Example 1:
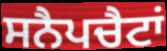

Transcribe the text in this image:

ਸਨੈਪਚੈਟਾਂ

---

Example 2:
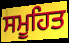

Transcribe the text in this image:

ਸਮੂਹਿਤ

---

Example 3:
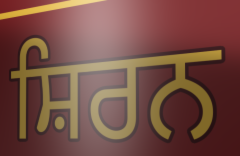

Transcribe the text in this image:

ਸ਼ਿਰਨ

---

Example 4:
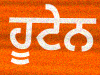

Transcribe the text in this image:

ਹੂਟੇਨ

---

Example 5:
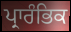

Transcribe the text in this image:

ਪ੍ਰਾਰੰਭਿਕ